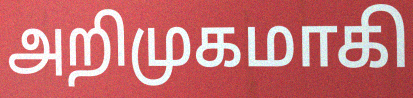
அறிமுகமாகி